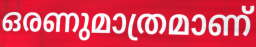
ഒരണുമാത്രമാണ്